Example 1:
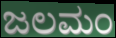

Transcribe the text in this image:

ಜಲಮಂ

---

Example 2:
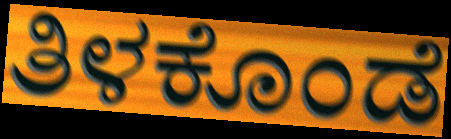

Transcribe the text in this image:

ತಿಳಕೊಂಡೆ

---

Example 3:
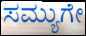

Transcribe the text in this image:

ಸಮ್ಯುಗೇ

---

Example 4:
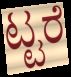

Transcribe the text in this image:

ಟ್ಟರೆ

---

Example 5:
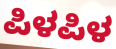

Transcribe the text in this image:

ಪಿಳಪಿಳ